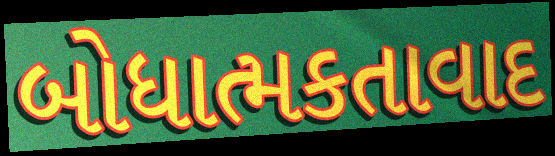
બોધાત્મકતાવાદ